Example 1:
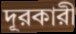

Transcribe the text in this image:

দূরকারী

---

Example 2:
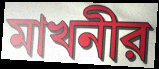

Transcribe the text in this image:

মাখনীর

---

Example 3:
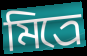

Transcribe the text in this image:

মিত্রে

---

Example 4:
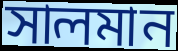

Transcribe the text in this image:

সালমান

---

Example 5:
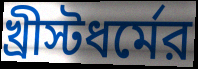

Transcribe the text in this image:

খ্রীস্টধর্মের